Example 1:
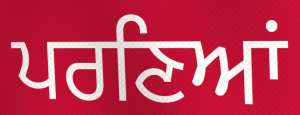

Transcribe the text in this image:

ਪਰਣਿਆਂ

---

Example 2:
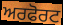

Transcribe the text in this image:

ਅਰਫੋਰਟ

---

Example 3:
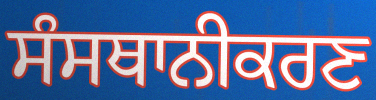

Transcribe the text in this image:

ਸੰਸਥਾਨੀਕਰਣ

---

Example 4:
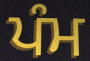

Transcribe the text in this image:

ਪੰਮ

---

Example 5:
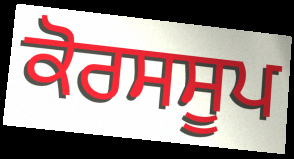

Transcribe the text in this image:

ਕੋਰਸਸੂਪ